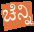
ಚೆನ್ನಿ